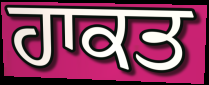
ਹਾਕਤ